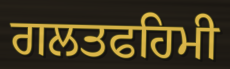
ਗਲਤਫਹਿਮੀ